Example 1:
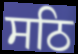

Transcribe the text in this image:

ਸਠਿ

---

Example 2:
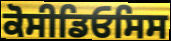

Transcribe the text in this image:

ਕੋਸੀਡਿਓਸਿਸ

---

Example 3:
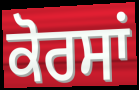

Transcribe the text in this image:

ਕੋਰਸਾਂ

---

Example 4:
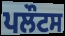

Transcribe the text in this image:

ਪਲੌਟਸ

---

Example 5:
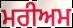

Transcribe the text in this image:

ਮਰੀਅਮ